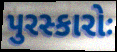
પુરસ્કારોઃ